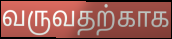
வருவதற்காக